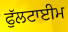
ਫੁੱਲਟਾਈਮ